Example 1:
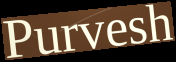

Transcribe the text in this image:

Purvesh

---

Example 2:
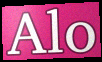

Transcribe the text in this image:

Alo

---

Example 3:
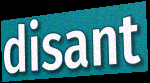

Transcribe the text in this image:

disant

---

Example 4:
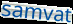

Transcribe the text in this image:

samvat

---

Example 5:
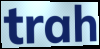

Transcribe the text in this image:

trah